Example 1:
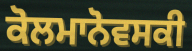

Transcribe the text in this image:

ਕੋਲਮਾਨੋਵਸਕੀ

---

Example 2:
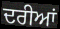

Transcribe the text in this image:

ਦਰੀਆਂ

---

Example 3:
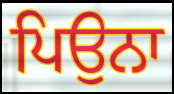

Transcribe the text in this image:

ਪਿਉਨਾ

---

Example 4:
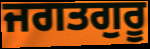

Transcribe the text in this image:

ਜਗਤਗੁਰੂ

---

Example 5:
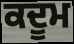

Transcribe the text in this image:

ਕਦੂਮ